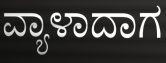
ವ್ಯಾಳಾದಾಗ